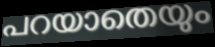
പറയാതെയും